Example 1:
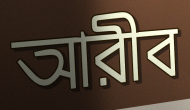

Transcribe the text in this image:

আরীব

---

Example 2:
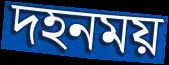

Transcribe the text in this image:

দহনময়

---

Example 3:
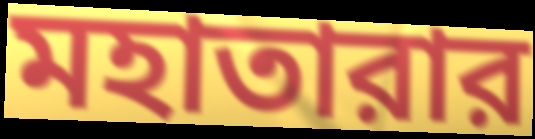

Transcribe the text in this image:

মহাতারার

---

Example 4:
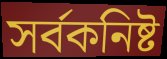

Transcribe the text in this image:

সর্বকনিষ্ট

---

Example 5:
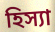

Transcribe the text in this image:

হিস্যা